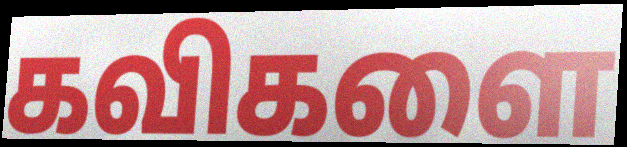
கவிகளை